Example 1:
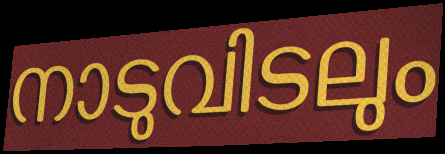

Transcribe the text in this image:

നാടുവിടലും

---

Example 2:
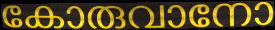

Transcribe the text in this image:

കോരുവാനോ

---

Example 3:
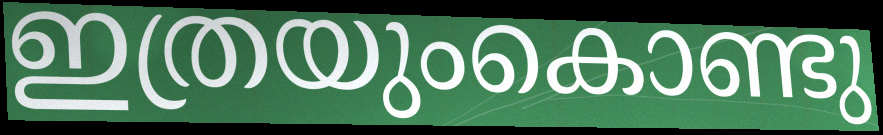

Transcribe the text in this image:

ഇത്രയുംകൊണ്ടു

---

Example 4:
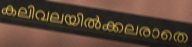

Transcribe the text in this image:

കലിവലയിൽക്കലരാതെ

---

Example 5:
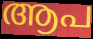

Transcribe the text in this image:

ആപ